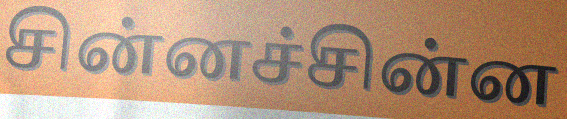
சின்னச்சின்ன